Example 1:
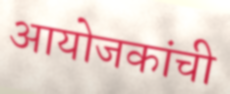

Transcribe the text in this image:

आयोजकांची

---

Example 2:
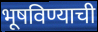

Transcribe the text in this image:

भूषविण्याची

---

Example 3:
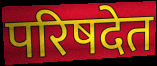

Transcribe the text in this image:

परिषदेत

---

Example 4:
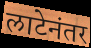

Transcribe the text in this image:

लाटेनंतर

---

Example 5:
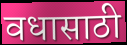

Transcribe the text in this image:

वधासाठी